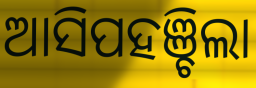
ଆସିପହଞ୍ଚିଲା